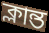
ক্লান্ত